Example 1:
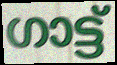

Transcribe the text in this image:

ഗാട്ട്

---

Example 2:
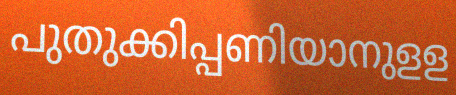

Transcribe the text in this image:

പുതുക്കിപ്പണിയാനുളള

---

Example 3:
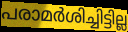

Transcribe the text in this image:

പരാമർശിച്ചിട്ടില്ല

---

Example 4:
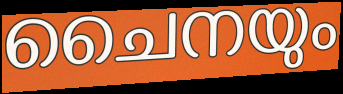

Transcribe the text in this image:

ചൈനയും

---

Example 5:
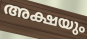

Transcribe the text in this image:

അക്ഷയും